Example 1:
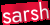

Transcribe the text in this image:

sarsh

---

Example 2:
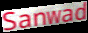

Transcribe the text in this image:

Sanwad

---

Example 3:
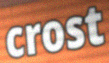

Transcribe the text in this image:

crost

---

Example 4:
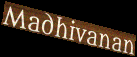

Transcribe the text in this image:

Madhivanan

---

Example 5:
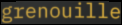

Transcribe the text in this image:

grenouille